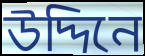
উদ্দিনে